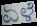
ಏಳೆ